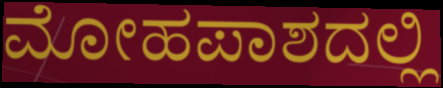
ಮೋಹಪಾಶದಲ್ಲಿ